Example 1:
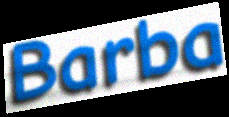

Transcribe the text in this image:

Barba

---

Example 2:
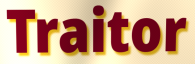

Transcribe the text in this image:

Traitor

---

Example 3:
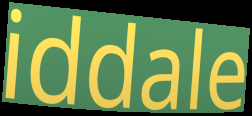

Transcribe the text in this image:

iddale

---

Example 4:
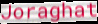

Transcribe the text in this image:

Joraghat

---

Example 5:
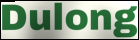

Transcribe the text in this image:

Dulong